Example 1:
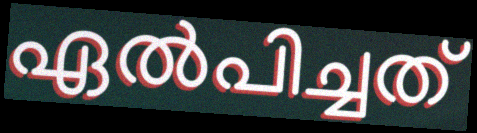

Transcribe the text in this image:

ഏൽപിച്ചത്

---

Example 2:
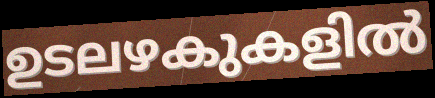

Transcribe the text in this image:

ഉടലഴകുകളിൽ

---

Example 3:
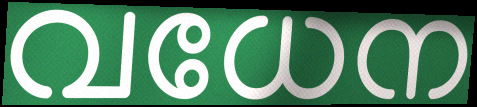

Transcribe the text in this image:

വധേന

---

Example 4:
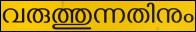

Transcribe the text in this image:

വരുത്തുന്നതിനും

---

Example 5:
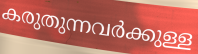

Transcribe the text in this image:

കരുതുന്നവർക്കുള്ള